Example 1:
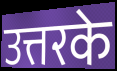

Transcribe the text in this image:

उत्तरके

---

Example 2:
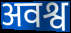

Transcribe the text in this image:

अवश्व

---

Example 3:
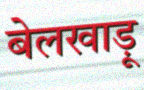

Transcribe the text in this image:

बेलखाड़ू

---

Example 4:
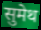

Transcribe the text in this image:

सुमेथ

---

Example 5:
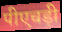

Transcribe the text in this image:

पीएचड़ी